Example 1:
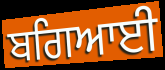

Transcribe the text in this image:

ਬਗਿਆਈ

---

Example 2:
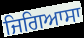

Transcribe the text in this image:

ਜਿਗਿਆਸਾ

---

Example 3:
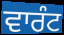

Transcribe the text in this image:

ਵਾਰੰਟ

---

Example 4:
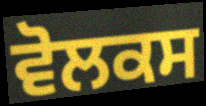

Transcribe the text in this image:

ਵੋਲਕਸ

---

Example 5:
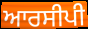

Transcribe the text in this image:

ਆਰਸੀਪੀ